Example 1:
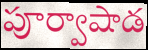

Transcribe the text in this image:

పూర్వాషాడ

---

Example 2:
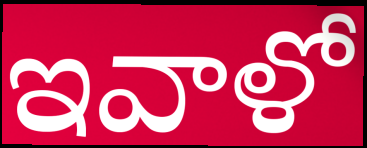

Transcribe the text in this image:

ఇవాళో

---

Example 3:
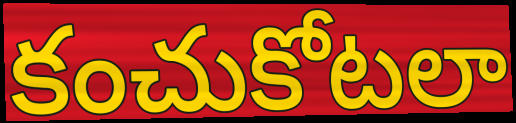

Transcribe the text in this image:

కంచుకోటలా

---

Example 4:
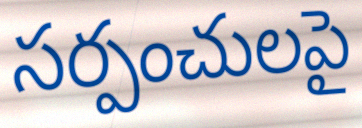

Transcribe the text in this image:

సర్పంచులపై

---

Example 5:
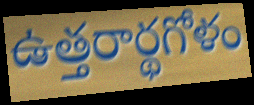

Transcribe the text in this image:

ఉత్తరార్థగోళం